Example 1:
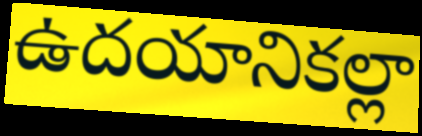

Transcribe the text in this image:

ఉదయానికల్లా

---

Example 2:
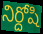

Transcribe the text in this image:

నిర్దోషి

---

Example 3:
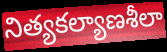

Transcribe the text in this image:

నిత్యకల్యాణశీలా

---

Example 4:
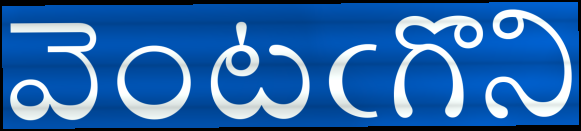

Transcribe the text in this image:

వెంటఁగొని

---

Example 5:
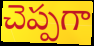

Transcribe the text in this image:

చెప్పగా